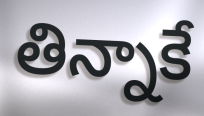
తిన్నాకే